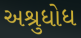
અશ્રુધોધ